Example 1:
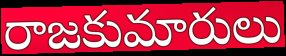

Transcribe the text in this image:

రాజకుమారులు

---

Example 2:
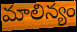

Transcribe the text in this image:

మాలిన్యం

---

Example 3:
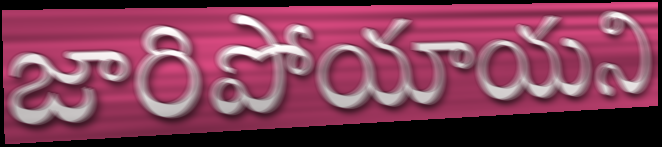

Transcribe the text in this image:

జారిపోయాయని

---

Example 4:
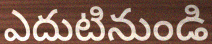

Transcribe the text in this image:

ఎదుటినుండి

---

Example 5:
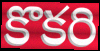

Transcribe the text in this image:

కొకరి